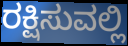
ರಕ್ಷಿಸುವಲ್ಲಿ